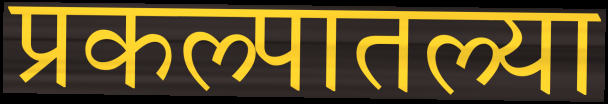
प्रकल्पातल्या